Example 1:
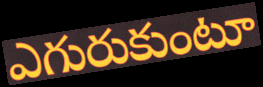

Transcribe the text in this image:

ఎగురుకుంటూ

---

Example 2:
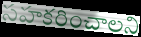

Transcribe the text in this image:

సహకరించాలని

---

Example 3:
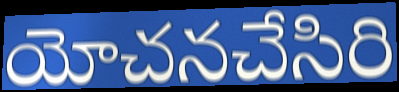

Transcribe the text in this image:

యోచనచేసిరి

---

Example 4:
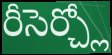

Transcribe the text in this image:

రీసెర్చ్లో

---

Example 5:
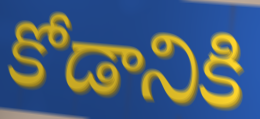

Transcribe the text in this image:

కోడానికి